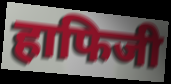
हाफिजी